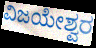
ವಿಜಯೇಶ್ವರ